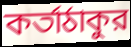
কর্তাঠাকুর